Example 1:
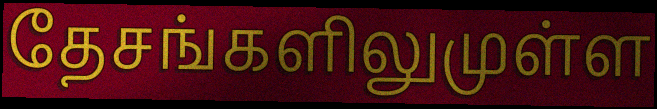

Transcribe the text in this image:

தேசங்களிலுமுள்ள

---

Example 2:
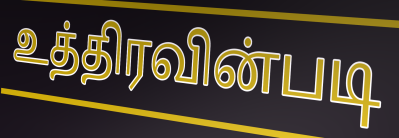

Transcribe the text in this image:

உத்திரவின்படி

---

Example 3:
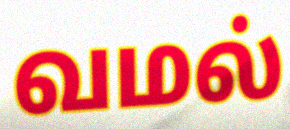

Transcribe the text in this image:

வமல்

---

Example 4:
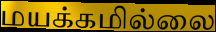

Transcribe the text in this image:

மயக்கமில்லை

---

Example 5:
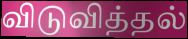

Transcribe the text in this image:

விடுவித்தல்